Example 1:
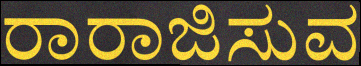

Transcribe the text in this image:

ರಾರಾಜಿಸುವ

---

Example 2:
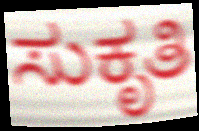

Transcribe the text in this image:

ಸುಕೃತಿ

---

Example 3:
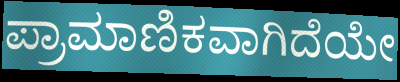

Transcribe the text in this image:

ಪ್ರಾಮಾಣಿಕವಾಗಿದೆಯೇ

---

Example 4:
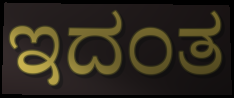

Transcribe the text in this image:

ಇದಂತ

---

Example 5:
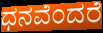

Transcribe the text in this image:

ಧನವೆಂದರೆ